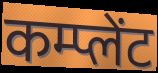
कम्प्लेंट